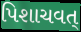
પિશાચવત્